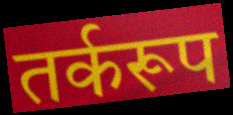
तर्करूप